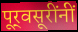
पूर्वसूरींनीं